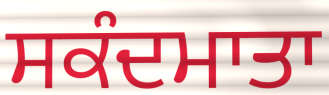
ਸਕੰਦਮਾਤਾ